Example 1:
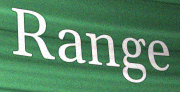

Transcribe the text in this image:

Range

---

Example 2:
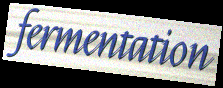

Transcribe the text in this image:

fermentation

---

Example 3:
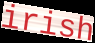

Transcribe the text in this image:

irish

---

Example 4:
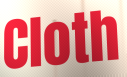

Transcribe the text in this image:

Cloth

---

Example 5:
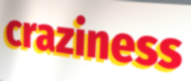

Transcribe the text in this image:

craziness